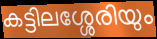
കട്ടിലശ്ശേരിയും